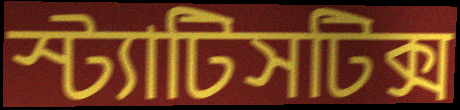
স্ট্যাটিসটিক্স